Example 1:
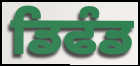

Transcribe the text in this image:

ਡਿਫੰਡ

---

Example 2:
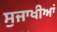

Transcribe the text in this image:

ਸੁਜਾਖੀਆਂ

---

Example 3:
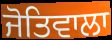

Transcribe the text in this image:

ਜੋਤਿਵਾਲਾ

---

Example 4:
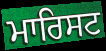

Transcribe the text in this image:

ਮਾਰਿਸਟ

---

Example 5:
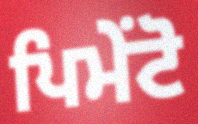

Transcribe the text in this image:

ਪਿਮੇਂਟੋ